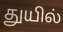
துயில்